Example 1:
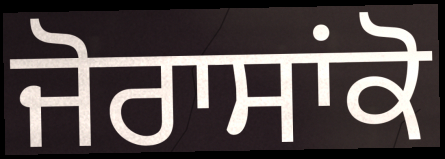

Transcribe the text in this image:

ਜੋਰਾਸਾਂਕੋ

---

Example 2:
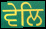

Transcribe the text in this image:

ਵੇਲਿ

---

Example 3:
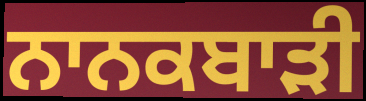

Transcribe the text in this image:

ਨਾਨਕਬਾੜੀ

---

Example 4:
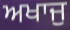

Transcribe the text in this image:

ਅਖਾਜੁ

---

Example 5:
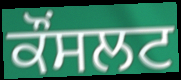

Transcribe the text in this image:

ਕੌਂਸਲਟ